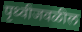
पृथ्वीजवळील